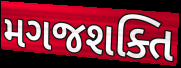
મગજશક્તિ